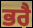
ਭਰੈ